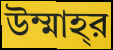
উম্মাহ্‌র